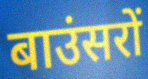
बाउंसरों